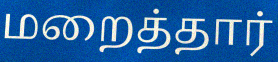
மறைத்தார்